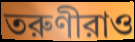
তরুণীরাও